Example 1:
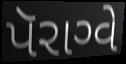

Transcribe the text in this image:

પૅરાગ્વે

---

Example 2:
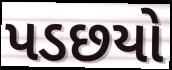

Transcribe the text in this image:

પડછયો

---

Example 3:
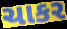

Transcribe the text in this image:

ચાકર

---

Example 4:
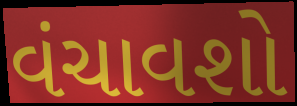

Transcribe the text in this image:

વંચાવશો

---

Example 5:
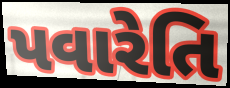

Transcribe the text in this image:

પવારેતિ